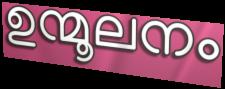
ഉന്മൂലനം